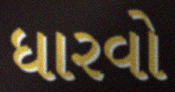
ધારવો